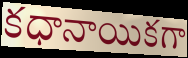
కధానాయికగా